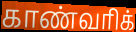
காண்வரிக்